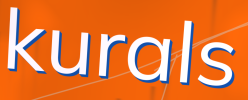
kurals